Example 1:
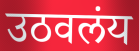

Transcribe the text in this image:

उठवलंय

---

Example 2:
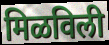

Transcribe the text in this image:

मिळविली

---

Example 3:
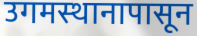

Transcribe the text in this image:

उगमस्थानापासून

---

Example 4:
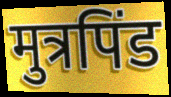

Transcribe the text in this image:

मुत्रपिंड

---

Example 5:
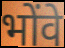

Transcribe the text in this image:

भोंवे